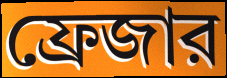
ফ্রেজার